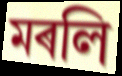
মৰলি